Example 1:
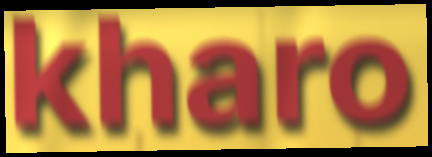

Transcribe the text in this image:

kharo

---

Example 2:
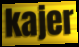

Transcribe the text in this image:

kajer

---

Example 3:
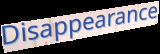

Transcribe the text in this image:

Disappearance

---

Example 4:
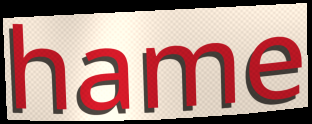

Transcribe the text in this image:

hame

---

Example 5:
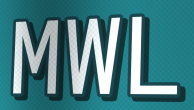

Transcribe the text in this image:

MWL